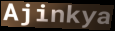
Ajinkya